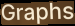
Graphs